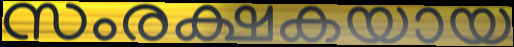
സംരക്ഷകയായ